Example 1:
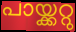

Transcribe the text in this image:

പായ്ക്കറ്റു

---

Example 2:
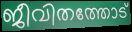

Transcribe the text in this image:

ജീവിതത്തോട്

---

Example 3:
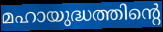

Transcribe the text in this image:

മഹായുദ്ധത്തിന്റെ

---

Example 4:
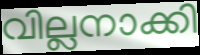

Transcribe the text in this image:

വില്ലനാക്കി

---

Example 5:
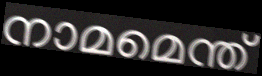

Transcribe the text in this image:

നാമമെന്ത്